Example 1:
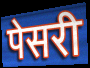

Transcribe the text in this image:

पेसरी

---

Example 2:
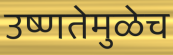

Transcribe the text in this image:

उष्णतेमुळेच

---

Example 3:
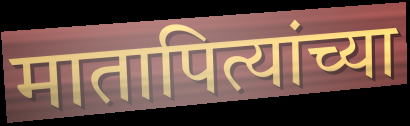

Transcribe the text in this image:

मातापित्यांच्या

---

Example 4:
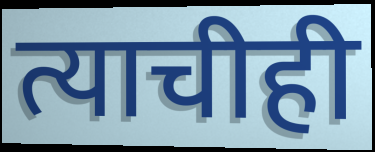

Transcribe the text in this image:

त्याचीही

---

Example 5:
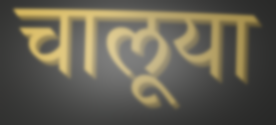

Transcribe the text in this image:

चालूया